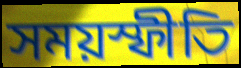
সময়স্ফীতি